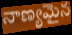
నాణ్యమైన